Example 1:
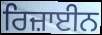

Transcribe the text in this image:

ਰਿਜ਼ਾਈਨ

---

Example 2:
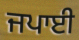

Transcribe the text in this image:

ਜਪਾਈ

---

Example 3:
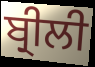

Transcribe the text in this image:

ਬ੍ਰੀਲੀ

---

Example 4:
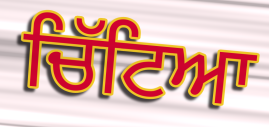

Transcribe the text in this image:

ਚਿੱਟਿਆ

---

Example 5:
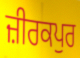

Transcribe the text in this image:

ਜ਼ੀਰਕਪੁਰ